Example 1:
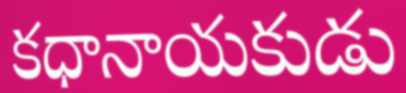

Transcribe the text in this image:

కధానాయకుడు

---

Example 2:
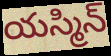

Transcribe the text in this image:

యస్మిన్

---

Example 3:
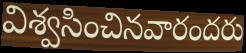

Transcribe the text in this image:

విశ్వసించినవారందరు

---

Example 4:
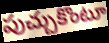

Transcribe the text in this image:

పుచ్చుకొంటూ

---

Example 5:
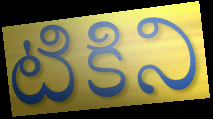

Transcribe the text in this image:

టికిని